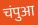
चंपुआ